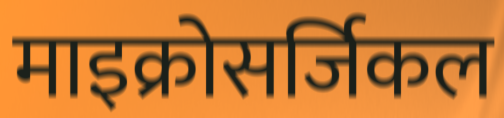
माइक्रोसर्जिकल